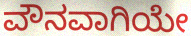
ವೌನವಾಗಿಯೇ